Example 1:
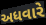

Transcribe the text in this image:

અધવારે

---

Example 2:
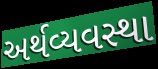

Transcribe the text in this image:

અર્થવ્યવસ્થા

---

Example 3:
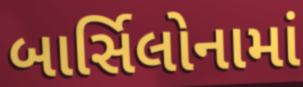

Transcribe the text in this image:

બાર્સિલોનામાં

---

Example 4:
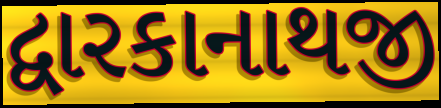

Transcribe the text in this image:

દ્વારકાનાથજી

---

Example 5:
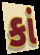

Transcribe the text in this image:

કાં